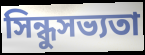
সিন্ধুসভ্যতা